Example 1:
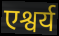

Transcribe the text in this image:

एश्वर्य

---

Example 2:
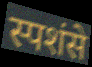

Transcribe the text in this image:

स्पशंसे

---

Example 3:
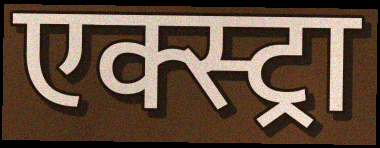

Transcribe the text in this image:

एक्स्ट्रा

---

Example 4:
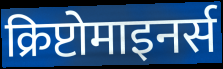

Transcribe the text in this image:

क्रिप्टोमाइनर्स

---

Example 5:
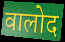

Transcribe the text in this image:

वालोद